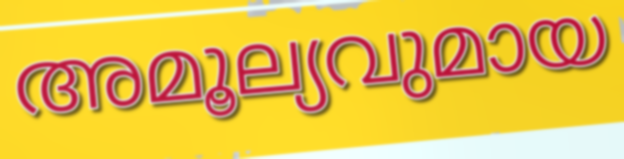
അമൂല്യവുമായ